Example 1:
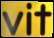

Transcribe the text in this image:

vit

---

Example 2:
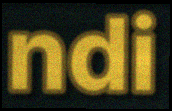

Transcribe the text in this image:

ndi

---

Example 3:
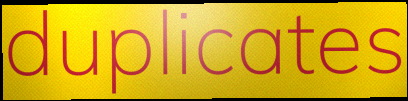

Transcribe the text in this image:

duplicates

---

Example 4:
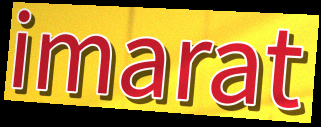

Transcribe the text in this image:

imarat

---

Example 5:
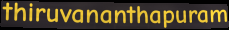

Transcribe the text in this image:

thiruvananthapuram